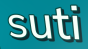
suti